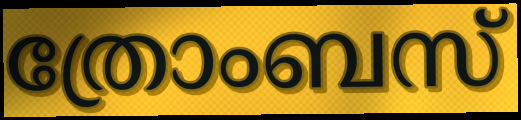
ത്രോംബസ്